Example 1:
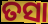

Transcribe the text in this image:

ତସା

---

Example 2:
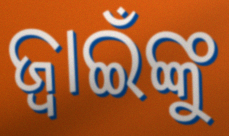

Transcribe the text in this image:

ଜ୍ବାଇଁଙ୍କୁ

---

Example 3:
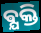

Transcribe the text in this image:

ଵ୍ଯକ୍ତି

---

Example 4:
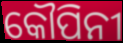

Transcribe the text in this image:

କୌପିନୀ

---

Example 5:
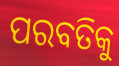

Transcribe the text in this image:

ପରବତିକୁ